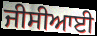
ਜੀਸੀਆਈ